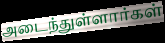
அடைந்துள்ளார்கள்